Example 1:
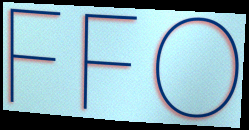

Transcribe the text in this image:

FFO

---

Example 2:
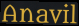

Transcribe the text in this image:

Anavil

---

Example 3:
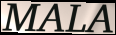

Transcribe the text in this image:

MALA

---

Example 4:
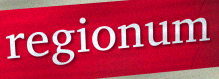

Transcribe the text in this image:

regionum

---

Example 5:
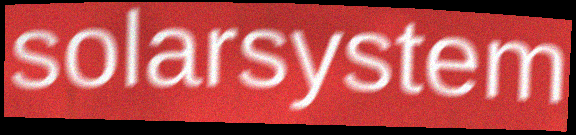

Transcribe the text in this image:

solarsystem